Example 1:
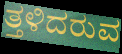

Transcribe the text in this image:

ತ್ತಳಿದರುವ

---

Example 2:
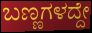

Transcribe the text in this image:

ಬಣ್ಣಗಳದ್ದೇ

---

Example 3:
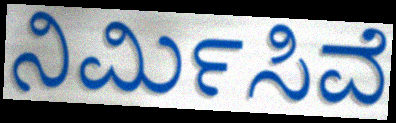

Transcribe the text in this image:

ನಿರ್ಮಿಸಿವೆ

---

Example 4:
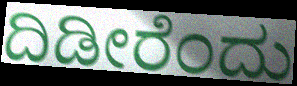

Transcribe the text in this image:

ದಿಡೀರೆಂದು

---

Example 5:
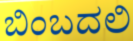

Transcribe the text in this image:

ಬಿಂಬದಲಿ